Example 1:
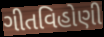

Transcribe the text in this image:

ગીતવિહોણી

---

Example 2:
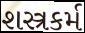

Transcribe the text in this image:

શસ્ત્રકર્મ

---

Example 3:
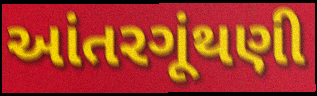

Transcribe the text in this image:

આંતરગૂંથણી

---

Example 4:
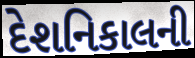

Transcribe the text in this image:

દેશનિકાલની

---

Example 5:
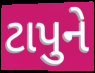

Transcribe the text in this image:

ટાપુને